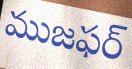
ముజఫర్